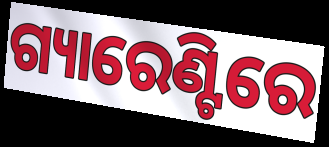
ଗ୍ୟାରେଣ୍ଟିରେ